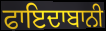
ਫਾਇਦਾਬਾਨੀ